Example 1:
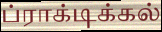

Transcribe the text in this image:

ப்ராக்டிக்கல்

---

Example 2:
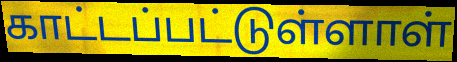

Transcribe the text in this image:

காட்டப்பட்டுள்ளாள்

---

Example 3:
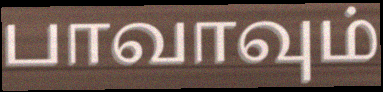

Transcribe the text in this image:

பாவாவும்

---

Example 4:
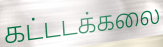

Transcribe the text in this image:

கட்டடக்கலை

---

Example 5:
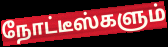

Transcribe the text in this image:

நோட்டீஸ்களும்